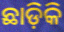
ଛାଡ଼ିକି